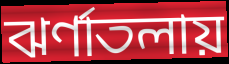
ঝর্ণাতলায়